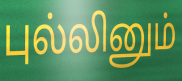
புல்லினும்